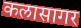
कलासागर